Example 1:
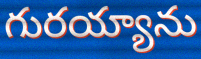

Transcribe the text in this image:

గురయ్యాను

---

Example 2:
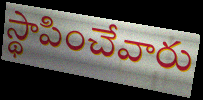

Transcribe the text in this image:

స్థాపించేవారు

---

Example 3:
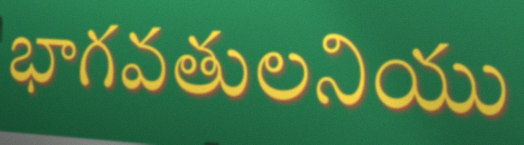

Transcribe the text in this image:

భాగవతులనియు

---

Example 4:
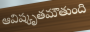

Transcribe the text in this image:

ఆవిష్కృతమౌతుంది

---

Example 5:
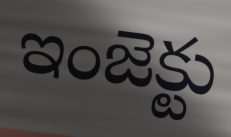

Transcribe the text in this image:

ఇంజెక్టు